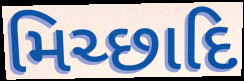
મિચ્છાદિ